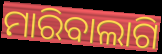
ମାରିବାଲାଗି